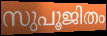
സുപൂജിതം